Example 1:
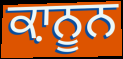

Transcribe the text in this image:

ਕ਼ਾਨੂਨ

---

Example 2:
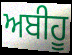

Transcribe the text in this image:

ਅਬੀਹੂ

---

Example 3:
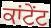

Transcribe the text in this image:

ਕਾਂਟੇਂਟ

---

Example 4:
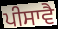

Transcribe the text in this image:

ਪੀਸਾਵੈ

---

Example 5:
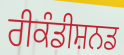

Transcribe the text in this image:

ਰੀਕੰਡੀਸ਼ਨਡ